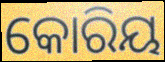
କୋରିୟ